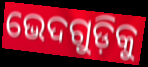
ଭେଦଗୁଡ଼ିକୁ